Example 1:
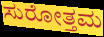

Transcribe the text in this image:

ಸುರೋತ್ತಮ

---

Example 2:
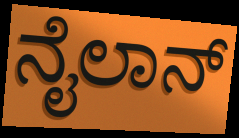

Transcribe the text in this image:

ನೈಲಾನ್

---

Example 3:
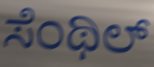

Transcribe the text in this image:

ಸೆಂಥಿಲ್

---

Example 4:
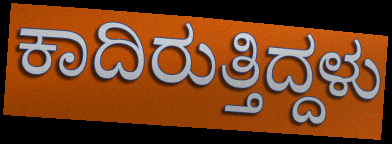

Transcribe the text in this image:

ಕಾದಿರುತ್ತಿದ್ದಳು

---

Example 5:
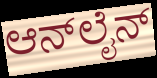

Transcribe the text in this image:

ಆನ್‌ಲೈನ್